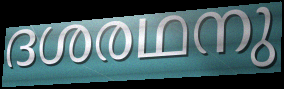
ദശരഥനു